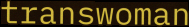
transwoman